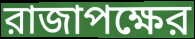
রাজাপক্ষের